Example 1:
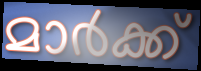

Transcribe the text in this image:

മാർക്ക്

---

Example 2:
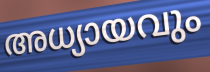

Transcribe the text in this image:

അധ്യായവും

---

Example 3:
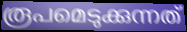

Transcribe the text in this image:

രൂപമെടുക്കുന്നത്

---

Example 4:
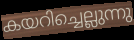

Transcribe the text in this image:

കയറിച്ചെല്ലുന്നു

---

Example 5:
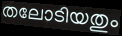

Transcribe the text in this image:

തലോടിയതും